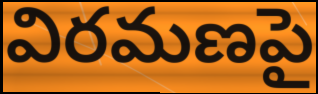
విరమణపై